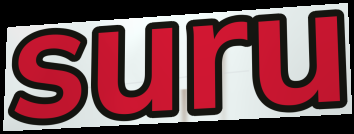
suru